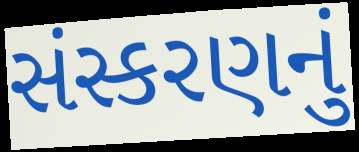
સંસ્કરણનું